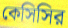
কেসিসির